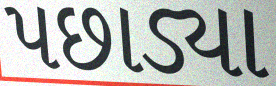
પછાડ્યા